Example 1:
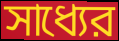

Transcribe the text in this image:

সাধ্যের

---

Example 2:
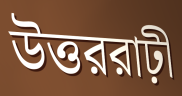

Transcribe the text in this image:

উত্তররাঢ়ী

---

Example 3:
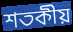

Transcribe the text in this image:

শতকীয়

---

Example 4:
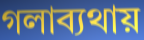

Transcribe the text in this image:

গলাব্যথায়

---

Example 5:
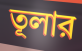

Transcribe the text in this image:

তূলার